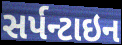
સર્પન્ટાઇન